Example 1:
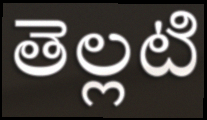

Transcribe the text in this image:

తెల్లటి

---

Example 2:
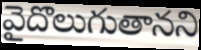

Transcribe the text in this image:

వైదొలుగుతానని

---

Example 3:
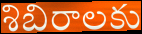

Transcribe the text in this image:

శిబిరాలకు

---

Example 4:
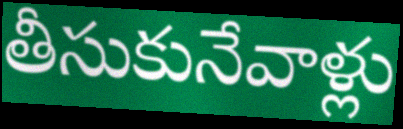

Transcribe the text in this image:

తీసుకునేవాళ్లు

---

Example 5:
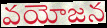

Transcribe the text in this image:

వయోజన